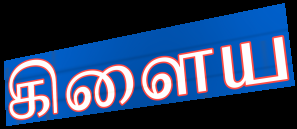
கிளைய